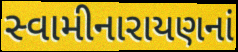
સ્વામીનારાયણનાં